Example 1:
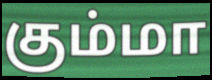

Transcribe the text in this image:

கும்மா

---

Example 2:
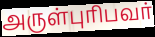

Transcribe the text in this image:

அருள்புரிபவர்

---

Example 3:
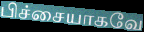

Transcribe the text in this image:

பிச்சையாகவே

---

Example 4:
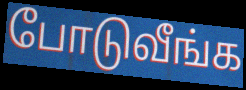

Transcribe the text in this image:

போடுவீங்க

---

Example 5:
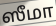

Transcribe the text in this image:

ஸீமா